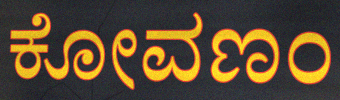
ಕೋವಣಂ